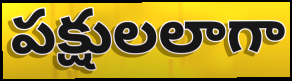
పక్షులలాగా